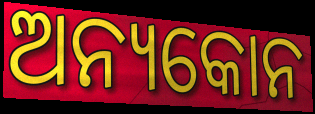
ଅନ୍ୟକୋନ